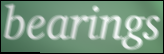
bearings